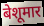
बेशूमार